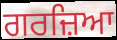
ਗਰਜ਼ਿਆ